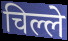
चिल्ले